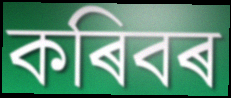
কৰিবৰ